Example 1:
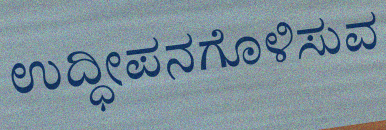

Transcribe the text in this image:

ಉದ್ಧೀಪನಗೊಳಿಸುವ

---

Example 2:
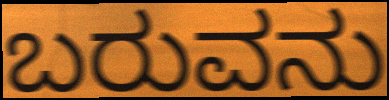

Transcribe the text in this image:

ಬರುವನು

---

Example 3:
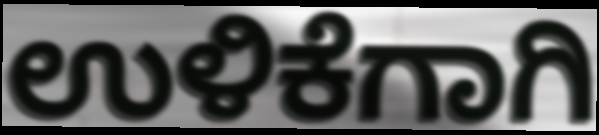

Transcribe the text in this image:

ಉಳಿಕೆಗಾಗಿ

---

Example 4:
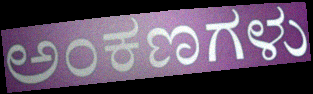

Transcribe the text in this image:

ಅಂಕಣಗಳು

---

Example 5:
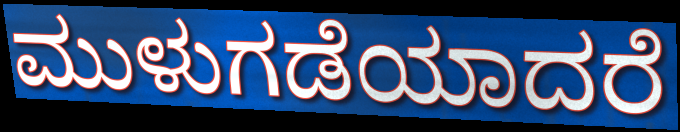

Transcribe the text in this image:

ಮುಳುಗಡೆಯಾದರೆ